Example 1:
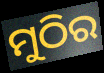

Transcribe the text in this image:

ମୁଠିର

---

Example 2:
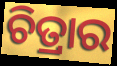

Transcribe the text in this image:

ଚିତ୍ରାର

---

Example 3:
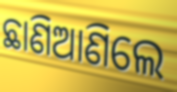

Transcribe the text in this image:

ଛାଣିଆଣିଲେ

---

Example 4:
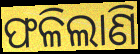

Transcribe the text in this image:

ଫଳିଲାଣି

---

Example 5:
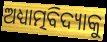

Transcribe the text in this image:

ଅଧ୍ୟାତ୍ମବିଦ୍ୟାକୁ